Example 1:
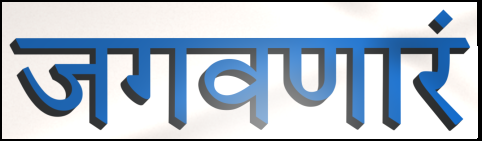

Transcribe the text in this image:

जगवणारं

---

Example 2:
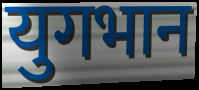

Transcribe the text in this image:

युगभान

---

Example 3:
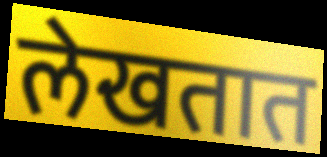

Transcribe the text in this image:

लेखतात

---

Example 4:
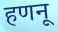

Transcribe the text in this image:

हणनू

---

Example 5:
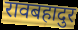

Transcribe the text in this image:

रावबहादुर